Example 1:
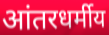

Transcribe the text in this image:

आंतरधर्मीय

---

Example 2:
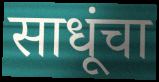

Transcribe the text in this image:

साधूंचा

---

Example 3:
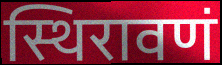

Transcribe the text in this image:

स्थिरावणं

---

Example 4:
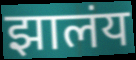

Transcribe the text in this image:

झालंय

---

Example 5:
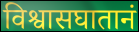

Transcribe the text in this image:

विश्वासघातानं